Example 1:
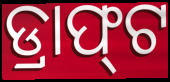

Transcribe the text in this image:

ଡ୍ରାଫ୍‍ଟ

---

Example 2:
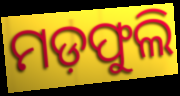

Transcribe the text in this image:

ମଡ଼ଫୁଲି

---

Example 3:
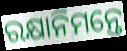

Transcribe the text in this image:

ରକ୍ଷାନିମନ୍ତେ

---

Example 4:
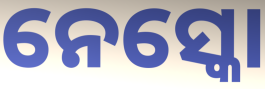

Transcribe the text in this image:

ନେସ୍କୋ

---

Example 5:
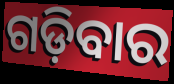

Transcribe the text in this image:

ଗଡ଼ିବାର